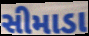
સીમાડા